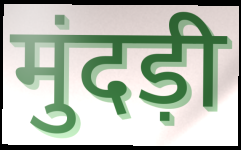
मुंदड़ी